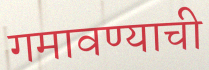
गमावण्याची